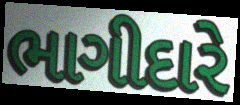
ભાગીદારે